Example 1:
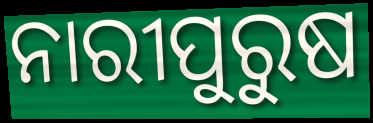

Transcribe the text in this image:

ନାରୀପୁରୁଷ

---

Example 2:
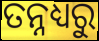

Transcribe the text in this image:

ତନ୍ନଧ୍ୟରୁ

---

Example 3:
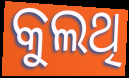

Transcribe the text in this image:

କୁଲଥି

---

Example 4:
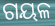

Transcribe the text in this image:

ଗୟଳ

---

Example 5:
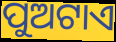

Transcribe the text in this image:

ପୁଅଟାଏ